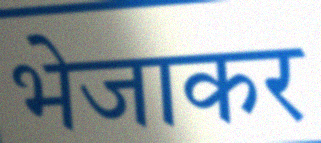
भेजाकर